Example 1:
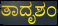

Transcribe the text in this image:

ತಾದೃಶಂ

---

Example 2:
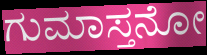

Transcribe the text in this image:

ಗುಮಾಸ್ತನೋ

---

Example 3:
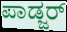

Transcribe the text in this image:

ಪಾಡ್ಜರ್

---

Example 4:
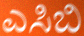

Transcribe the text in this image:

ಎಸಿಬಿ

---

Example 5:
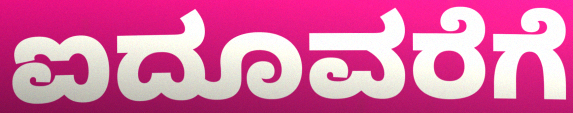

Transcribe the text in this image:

ಐದೂವರೆಗೆ